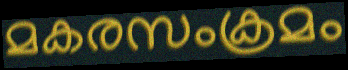
മകരസംക്രമം